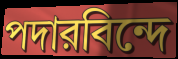
পদারবিন্দে